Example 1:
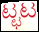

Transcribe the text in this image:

ಟ್ಟಟ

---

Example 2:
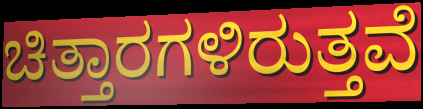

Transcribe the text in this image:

ಚಿತ್ತಾರಗಳಿರುತ್ತವೆ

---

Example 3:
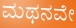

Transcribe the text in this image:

ಮಥನವೇ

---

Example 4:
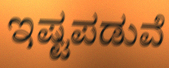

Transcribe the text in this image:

ಇಷ್ಟಪಡುವೆ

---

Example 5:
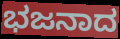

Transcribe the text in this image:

ಭಜನಾದ